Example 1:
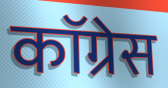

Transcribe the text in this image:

कॉग्रेस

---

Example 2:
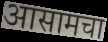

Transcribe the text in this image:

आसामचा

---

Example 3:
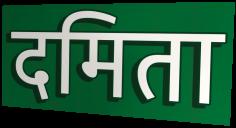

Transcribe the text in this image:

दमिता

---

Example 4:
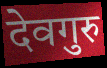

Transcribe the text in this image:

देवगुरु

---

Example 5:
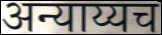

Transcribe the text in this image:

अन्याय्यच